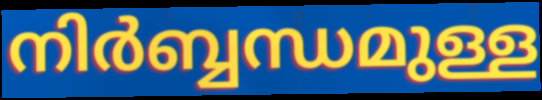
നിർബ്ബന്ധമുള്ള